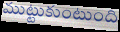
ముట్టుకుంటుంది